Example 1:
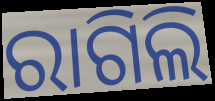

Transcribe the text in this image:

ରାଗିଲି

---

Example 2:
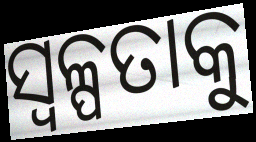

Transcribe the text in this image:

ସ୍ଵଳ୍ପତାକୁ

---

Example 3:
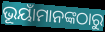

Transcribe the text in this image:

ଭୂୟାଁମାନଙ୍କଠାରୁ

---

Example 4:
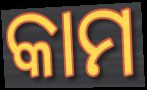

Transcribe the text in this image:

କାମ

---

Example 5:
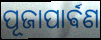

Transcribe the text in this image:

ପୂଜାପାର୍ଵଣ